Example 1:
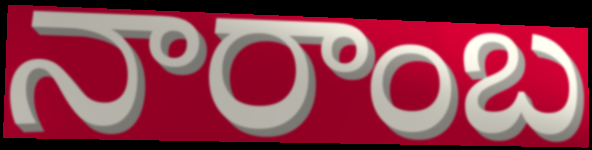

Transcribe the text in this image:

నారాంబ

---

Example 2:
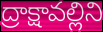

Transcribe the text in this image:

ద్రాక్షావల్లిని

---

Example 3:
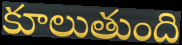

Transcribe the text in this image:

కూలుతుంది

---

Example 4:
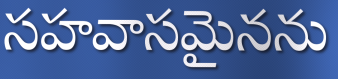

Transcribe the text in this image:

సహవాసమైనను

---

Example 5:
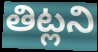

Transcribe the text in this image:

తిట్లని